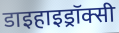
डाइहाइड्रॉक्सी